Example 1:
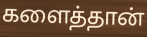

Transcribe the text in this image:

களைத்தான்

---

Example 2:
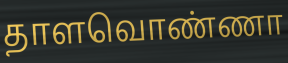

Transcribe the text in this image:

தாளவொண்ணா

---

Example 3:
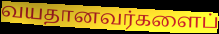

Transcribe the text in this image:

வயதானவர்களைப்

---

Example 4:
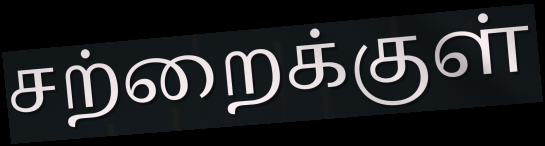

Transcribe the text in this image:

சற்றைக்குள்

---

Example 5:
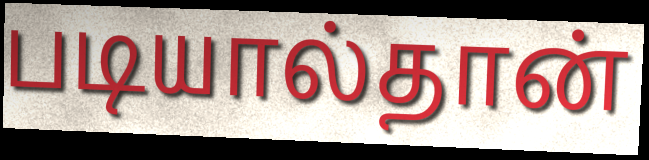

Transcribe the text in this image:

படியால்தான்